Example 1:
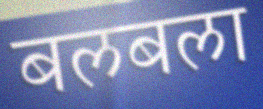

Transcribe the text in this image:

बलबला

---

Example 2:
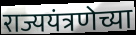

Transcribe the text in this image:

राज्ययंत्रणेच्या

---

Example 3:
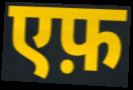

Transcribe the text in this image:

एफ़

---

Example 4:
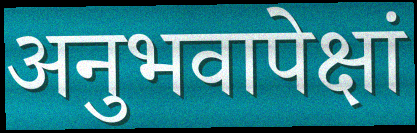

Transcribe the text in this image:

अनुभवापेक्षां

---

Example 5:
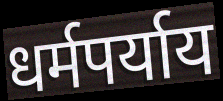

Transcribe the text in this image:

धर्मपर्याय